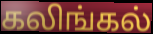
கலிங்கல்